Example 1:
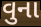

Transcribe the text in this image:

વુના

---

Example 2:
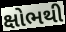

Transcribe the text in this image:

ક્ષોભથી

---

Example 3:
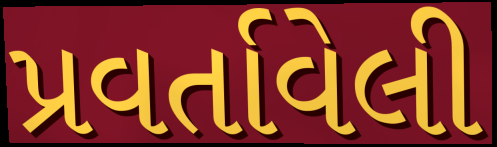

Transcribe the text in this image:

પ્રવર્તાવેલી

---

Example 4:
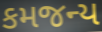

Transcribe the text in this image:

કમજન્ય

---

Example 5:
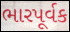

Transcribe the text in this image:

ભારપૂર્વક